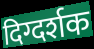
दिग्दर्शक